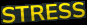
STRESS